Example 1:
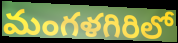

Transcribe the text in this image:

మంగళగిరిలో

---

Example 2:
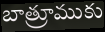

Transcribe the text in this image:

బాత్రూముకు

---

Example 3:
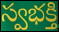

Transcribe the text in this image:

స్వభక్తి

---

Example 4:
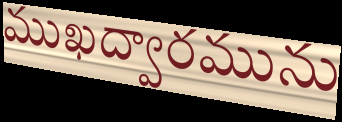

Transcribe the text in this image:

ముఖద్వారమును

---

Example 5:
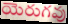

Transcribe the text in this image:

యెరుగవు